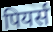
पियर्स